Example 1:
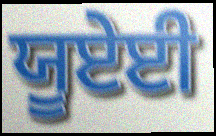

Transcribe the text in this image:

ਯੂਏਈ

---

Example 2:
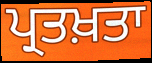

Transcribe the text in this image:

ਪ੍ਰਤਖ਼ਤਾ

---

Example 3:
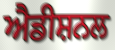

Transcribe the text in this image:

ਐਡੀਸ਼ਨਲ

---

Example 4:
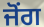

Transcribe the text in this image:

ਜੋਂਗ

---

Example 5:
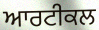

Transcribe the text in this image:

ਆਰਟੀਕਲ